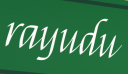
rayudu